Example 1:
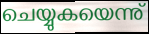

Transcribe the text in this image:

ചെയ്യുകയെന്നു്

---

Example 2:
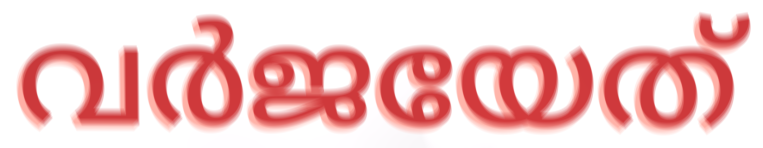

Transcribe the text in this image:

വർജയേത്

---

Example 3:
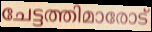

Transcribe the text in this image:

ചേട്ടത്തിമാരോട്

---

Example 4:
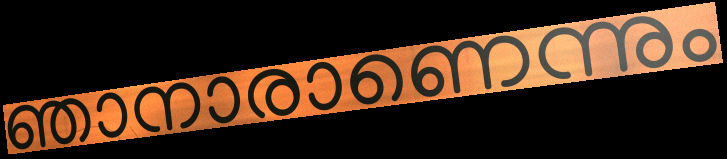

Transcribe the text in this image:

ഞാനാരാണെന്നും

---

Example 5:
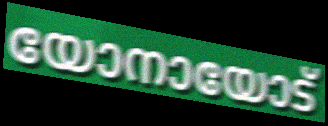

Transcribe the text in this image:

യോനായോട്